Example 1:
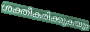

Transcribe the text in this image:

ശക്തീകരിക്കുകയും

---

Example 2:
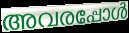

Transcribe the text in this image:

അവരപ്പോൾ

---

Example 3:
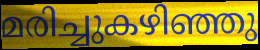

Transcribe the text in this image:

മരിച്ചുകഴിഞ്ഞു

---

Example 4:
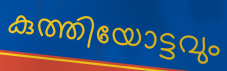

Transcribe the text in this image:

കുത്തിയോട്ടവും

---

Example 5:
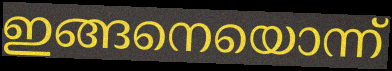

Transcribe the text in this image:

ഇങ്ങനെയൊന്ന്